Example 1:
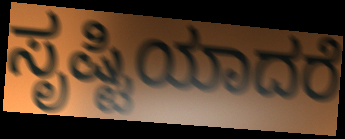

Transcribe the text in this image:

ಸೃಷ್ಟಿಯಾದರೆ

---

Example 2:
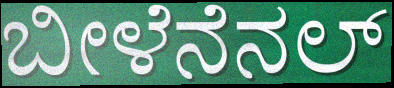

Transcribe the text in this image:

ಬೀಳೆನೆನಲ್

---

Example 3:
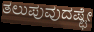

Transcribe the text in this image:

ತಲುಪುವುದಷ್ಟೇ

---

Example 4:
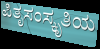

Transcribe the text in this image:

ಪಿತೃಸಂಸ್ಕೃತಿಯ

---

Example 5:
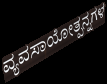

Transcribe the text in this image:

ವ್ಯವಸಾಯೋತ್ಪನ್ನಗಳ